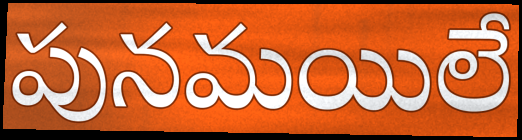
పునమయిలే